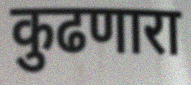
कुढणारा